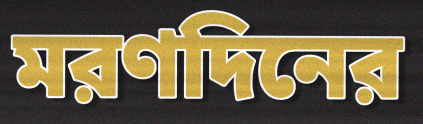
মরণদিনের